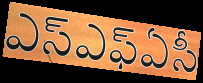
ఎస్ఎఫ్ఏసీ